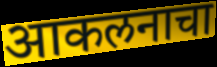
आकलनाचा